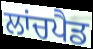
ਲਾਂਚਪੈਡ